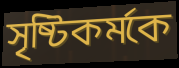
সৃষ্টিকর্মকে